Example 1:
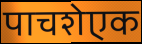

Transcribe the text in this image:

पाचशेएक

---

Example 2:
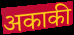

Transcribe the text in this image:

अकाकी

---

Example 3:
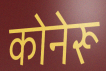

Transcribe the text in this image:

कोनेरू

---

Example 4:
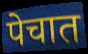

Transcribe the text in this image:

पेचात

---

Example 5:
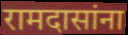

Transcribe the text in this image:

रामदासांना